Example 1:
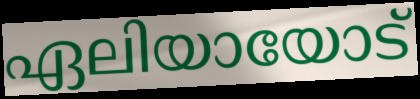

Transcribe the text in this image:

ഏലിയായോട്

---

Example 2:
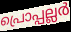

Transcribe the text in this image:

പ്രൊപ്പല്ലർ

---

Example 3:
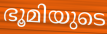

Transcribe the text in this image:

ഭൂമിയുടെ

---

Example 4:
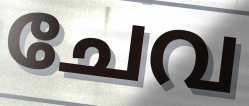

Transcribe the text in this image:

ചേവ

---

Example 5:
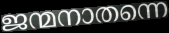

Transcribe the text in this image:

ജന്മനാതന്നെ